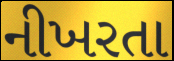
નીખરતા